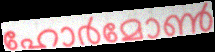
ഹോർമോൺ